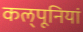
कल्पूनियां